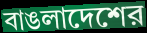
বাঙলাদেশের